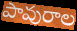
పావురాల